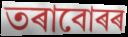
তৰাবোৰৰ